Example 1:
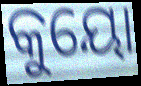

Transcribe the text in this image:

କୁୟୋ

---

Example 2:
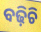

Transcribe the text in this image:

ବଢ଼ିଚି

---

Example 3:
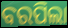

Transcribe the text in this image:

ବରପିଲା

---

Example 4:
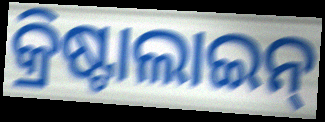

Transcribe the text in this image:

କ୍ରିଷ୍ଟାଲାଇନ୍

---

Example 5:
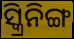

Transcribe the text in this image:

ସ୍କ୍ରିନିଙ୍ଗ